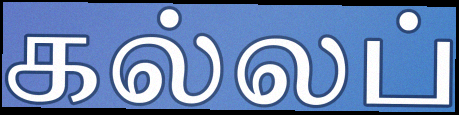
கல்லப்